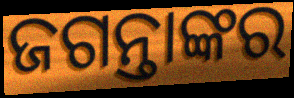
ଜଗନ୍ତାଙ୍କର